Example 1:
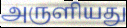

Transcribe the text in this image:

அருளியது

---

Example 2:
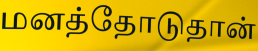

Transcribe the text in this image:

மனத்தோடுதான்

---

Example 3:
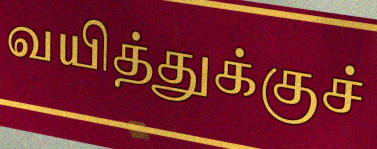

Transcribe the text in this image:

வயித்துக்குச்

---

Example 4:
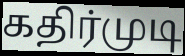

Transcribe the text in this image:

கதிர்முடி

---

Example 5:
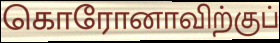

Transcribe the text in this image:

கொரோனாவிற்குப்